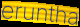
eruntha